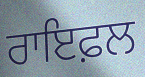
ਰਾਇਫ਼ਲ